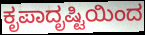
ಕೃಪಾದೃಷ್ಟಿಯಿಂದ